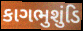
કાગભુશુંડિ